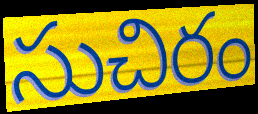
సుచిరం